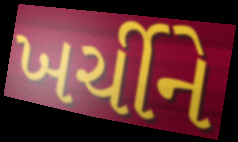
ખર્ચીને